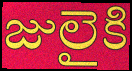
జులైకి